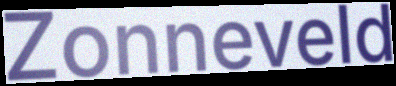
Zonneveld